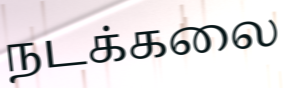
நடக்கலை